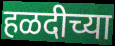
हळदीच्या